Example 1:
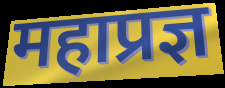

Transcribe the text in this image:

महाप्रज्ञ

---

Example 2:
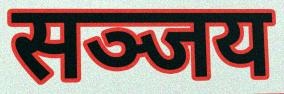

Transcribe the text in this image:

सञ्जय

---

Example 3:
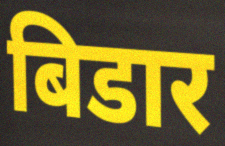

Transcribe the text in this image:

बिडार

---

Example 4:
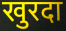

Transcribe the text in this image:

खुरदा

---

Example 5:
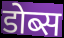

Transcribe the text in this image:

डोब्स